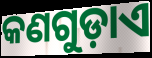
କଣଗୁଡ଼ାଏ